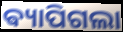
ଵ୍ୟାପିଗଲା